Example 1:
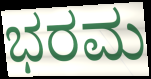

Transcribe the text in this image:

ಭರಮ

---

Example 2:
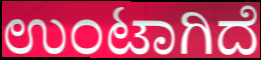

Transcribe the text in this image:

ಉಂಟಾಗಿದೆ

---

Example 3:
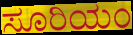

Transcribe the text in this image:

ಸೂರಿಯಂ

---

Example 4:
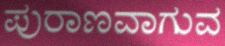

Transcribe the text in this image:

ಪುರಾಣವಾಗುವ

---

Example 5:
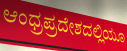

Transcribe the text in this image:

ಆಂಧ್ರಪ್ರದೇಶದಲ್ಲಿಯೂ